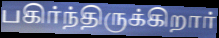
பகிர்ந்திருக்கிறார்